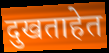
दुखताहेत